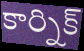
కార్నిక్